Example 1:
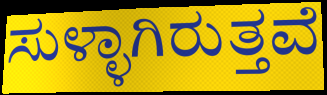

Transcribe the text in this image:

ಸುಳ್ಳಾಗಿರುತ್ತವೆ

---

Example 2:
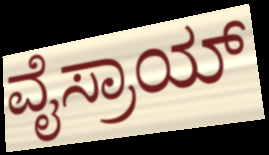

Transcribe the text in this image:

ವೈಸ್ರಾಯ್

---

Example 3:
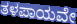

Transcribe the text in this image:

ತಳಪಾಯವೇ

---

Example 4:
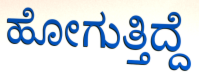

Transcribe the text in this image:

ಹೋಗುತ್ತಿದ್ದೆ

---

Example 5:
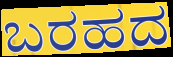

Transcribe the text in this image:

ಬರಹದ